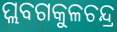
ପ୍ଲବଗକୁଳଚନ୍ଦ୍ର